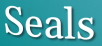
Seals